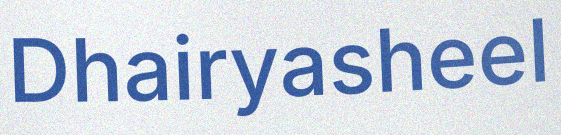
Dhairyasheel